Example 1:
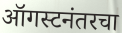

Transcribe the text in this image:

ऑगस्टनंतरचा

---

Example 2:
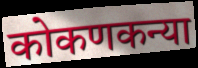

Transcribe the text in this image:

कोकणकन्या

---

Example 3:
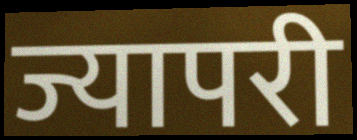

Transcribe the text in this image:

ज्यापरी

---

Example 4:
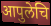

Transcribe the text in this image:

आपुलेचि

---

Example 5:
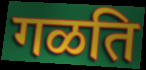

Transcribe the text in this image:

गळति